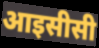
आइसीसी